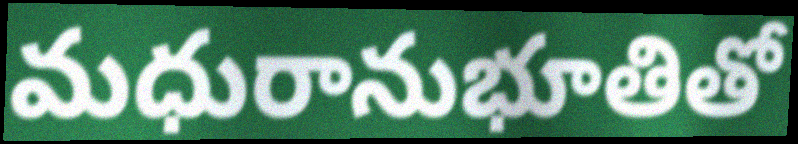
మధురానుభూతితో